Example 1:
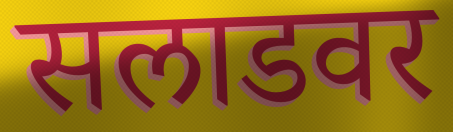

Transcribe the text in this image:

सलाडवर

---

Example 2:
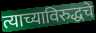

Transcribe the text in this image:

त्याच्याविरुद्धचे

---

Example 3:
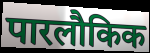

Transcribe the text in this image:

पारलौकिक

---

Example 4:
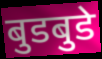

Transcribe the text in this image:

बुडबुडे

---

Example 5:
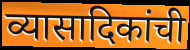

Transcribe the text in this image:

व्यासादिकांची